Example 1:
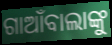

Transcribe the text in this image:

ଗାଆଁବାଲାଙ୍କୁ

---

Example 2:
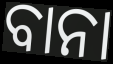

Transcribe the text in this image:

ବାନା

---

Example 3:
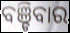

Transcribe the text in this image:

ବଞ୍ଚିବାର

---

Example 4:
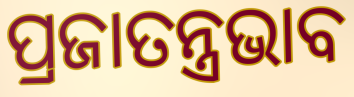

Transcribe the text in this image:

ପ୍ରଜାତନ୍ତ୍ରଭାବ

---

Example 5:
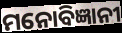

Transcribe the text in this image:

ମନୋବିଜ୍ଞାନୀ